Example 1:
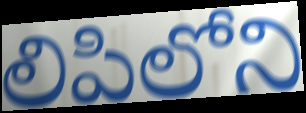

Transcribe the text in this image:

లిపిలోని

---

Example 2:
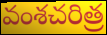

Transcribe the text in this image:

వంశచరిత్ర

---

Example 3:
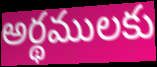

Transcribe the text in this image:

అర్థములకు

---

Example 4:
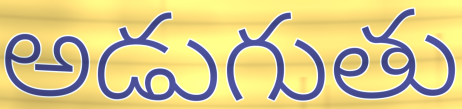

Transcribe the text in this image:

అడుగుతు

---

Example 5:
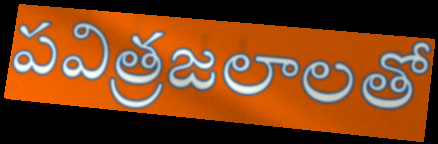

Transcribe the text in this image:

పవిత్రజలాలతో